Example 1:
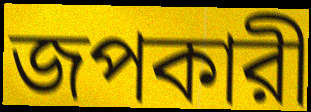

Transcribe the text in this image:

জপকারী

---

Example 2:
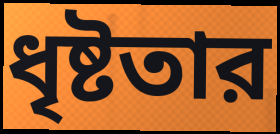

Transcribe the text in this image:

ধৃষ্টতার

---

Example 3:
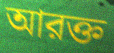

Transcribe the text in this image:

আরক্ত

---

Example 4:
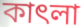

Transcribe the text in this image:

কাৎলা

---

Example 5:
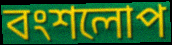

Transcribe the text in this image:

বংশলোপ